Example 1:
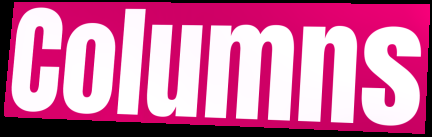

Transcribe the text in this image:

Columns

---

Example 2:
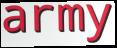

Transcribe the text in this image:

army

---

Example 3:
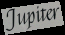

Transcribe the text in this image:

Jupiter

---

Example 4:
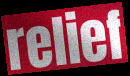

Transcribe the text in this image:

relief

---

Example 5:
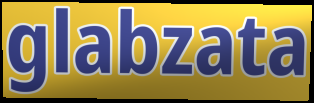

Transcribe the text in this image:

glabzata